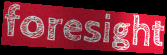
foresight